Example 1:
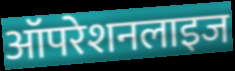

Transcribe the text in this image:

ऑपरेशनलाइज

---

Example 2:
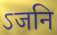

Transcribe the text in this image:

ऽजनि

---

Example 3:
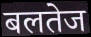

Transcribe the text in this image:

बलतेज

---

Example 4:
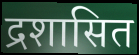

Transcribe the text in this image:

द्रशासित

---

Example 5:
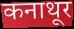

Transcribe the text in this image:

कनाथूर